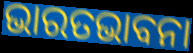
ଭାରତଭାବନା